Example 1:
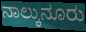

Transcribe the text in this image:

ನಾಲ್ಕುನೂರು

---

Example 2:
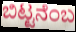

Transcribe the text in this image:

ಬಿಟ್ಟನೆಂಬ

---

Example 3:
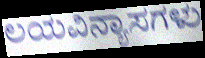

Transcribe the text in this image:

ಲಯವಿನ್ಯಾಸಗಳು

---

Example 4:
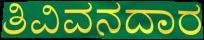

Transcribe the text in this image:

ತಿವಿವನದಾರ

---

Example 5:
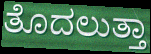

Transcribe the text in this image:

ತೊದಲುತ್ತಾ